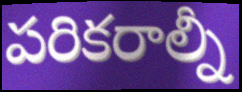
పరికరాల్నీ